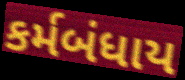
કર્મબંધાય